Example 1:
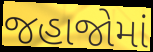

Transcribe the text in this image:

જહાજોમાં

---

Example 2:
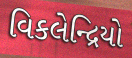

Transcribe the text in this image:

વિકલેન્દ્રિયો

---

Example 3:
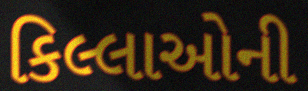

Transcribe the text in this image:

કિલ્લાઓની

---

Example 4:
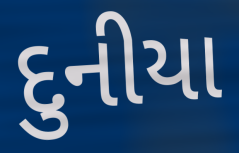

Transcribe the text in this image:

દુનીયા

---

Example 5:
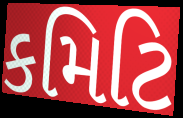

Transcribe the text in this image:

કમિટિ